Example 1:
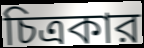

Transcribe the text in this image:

চিত্রকার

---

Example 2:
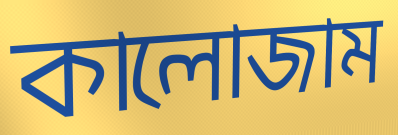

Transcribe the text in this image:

কালোজাম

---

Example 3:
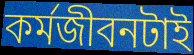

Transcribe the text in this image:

কর্মজীবনটাই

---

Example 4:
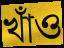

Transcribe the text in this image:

খাঁও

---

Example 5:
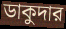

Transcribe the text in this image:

ডাকুদার